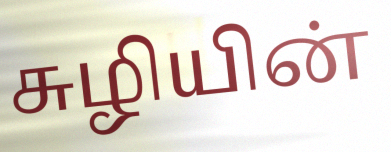
சுழியின்